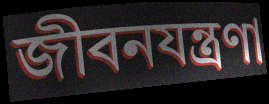
জীবনযন্ত্রণা